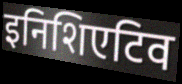
इनिशिएटिव